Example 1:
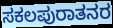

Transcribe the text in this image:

ಸಕಲಪುರಾತನರ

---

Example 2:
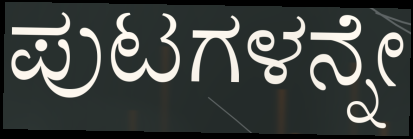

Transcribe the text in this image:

ಪುಟಗಳನ್ನೇ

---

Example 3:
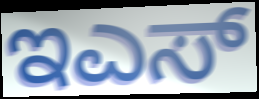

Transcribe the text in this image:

ಇಎಸ್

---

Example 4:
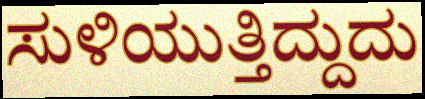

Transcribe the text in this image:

ಸುಳಿಯುತ್ತಿದ್ದುದು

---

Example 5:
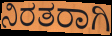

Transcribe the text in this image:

ನಿರತರಾಗಿ